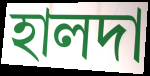
হালদা